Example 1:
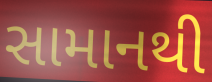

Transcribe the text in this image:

સામાનથી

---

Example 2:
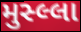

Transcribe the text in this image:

મુસ્લ્લા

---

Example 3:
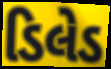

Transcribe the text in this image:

ડિલેડ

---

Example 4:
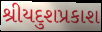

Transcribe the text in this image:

શ્રીયદુશપ્રકાશ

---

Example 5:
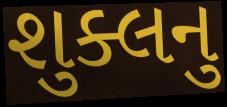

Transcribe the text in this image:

શુક્લનુ